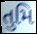
તુમિ